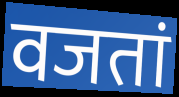
वजतां